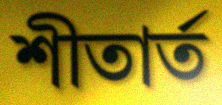
শীতার্ত